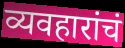
व्यवहारांचं